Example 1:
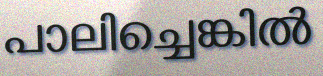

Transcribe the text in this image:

പാലിച്ചെങ്കിൽ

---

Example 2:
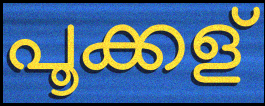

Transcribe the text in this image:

പൂക്കള്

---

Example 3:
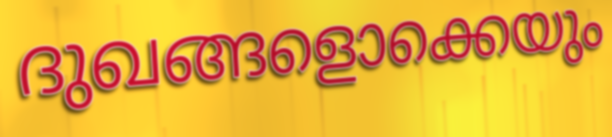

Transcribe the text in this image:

ദുഖങ്ങളൊക്കെയും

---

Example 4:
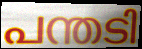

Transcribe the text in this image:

പന്തടി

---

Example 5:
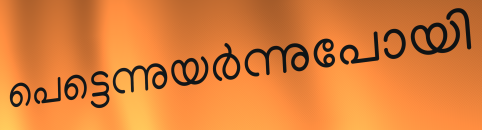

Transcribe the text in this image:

പെട്ടെന്നുയർന്നുപോയി